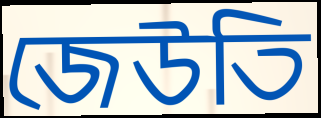
জেউতি